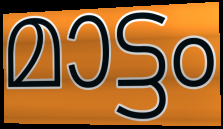
മാട്ടം